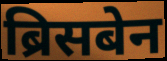
ब्रिसबेन